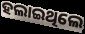
ହଲାଇଥିଲେ